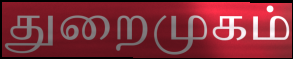
துறைமுகம்